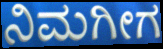
ನಿಮಗೀಗ